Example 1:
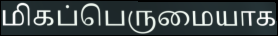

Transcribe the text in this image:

மிகப்பெருமையாக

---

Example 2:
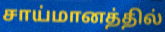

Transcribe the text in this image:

சாய்மானத்தில்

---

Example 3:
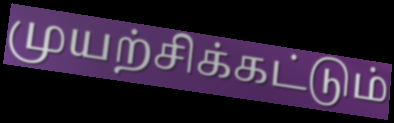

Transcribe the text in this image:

முயற்சிக்கட்டும்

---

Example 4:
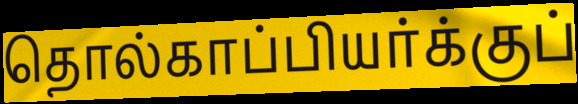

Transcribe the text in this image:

தொல்காப்பியர்க்குப்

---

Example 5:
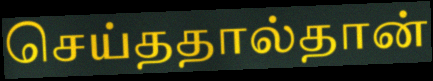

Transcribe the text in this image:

செய்ததால்தான்